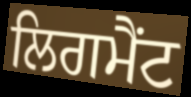
ਲਿਗਮੈਂਟ